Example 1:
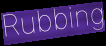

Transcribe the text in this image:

Rubbing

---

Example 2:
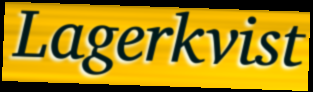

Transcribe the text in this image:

Lagerkvist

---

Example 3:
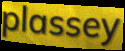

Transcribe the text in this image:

plassey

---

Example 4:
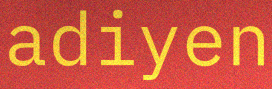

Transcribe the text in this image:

adiyen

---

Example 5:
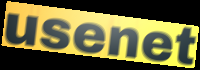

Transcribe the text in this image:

usenet